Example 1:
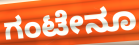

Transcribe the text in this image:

ಗಂಟೇನೂ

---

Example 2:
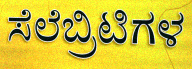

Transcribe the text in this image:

ಸೆಲೆಬ್ರಿಟಿಗಳ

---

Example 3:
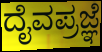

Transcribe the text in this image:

ದೈವಪ್ರಜ್ಞೆ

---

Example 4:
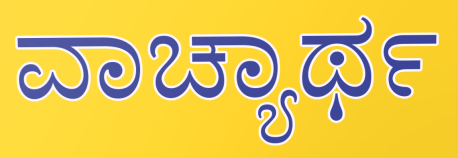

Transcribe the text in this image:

ವಾಚ್ಯಾರ್ಥ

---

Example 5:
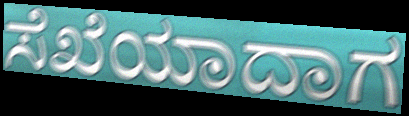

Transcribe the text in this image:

ಸೆಖೆಯಾದಾಗ